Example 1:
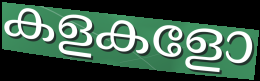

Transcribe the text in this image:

കളകളോ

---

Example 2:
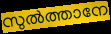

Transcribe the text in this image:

സുൽത്താനേ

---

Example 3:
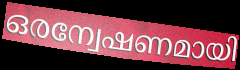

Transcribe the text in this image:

ഒരന്വേഷണമായി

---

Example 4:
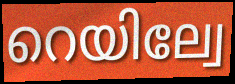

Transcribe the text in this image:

റെയില്വേ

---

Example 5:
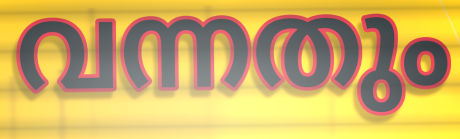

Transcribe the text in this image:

വന്നതും